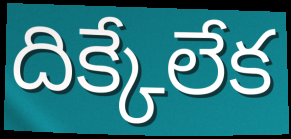
దిక్కేలేక